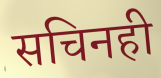
सचिनही